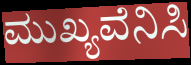
ಮುಖ್ಯವೆನಿಸಿ